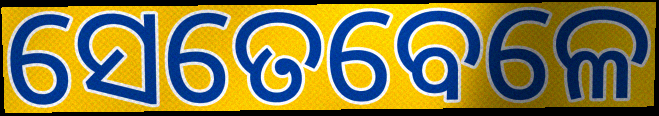
ସେତେବେଳେ